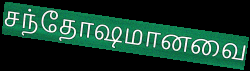
சந்தோஷமானவை